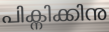
പിക്നിക്കിനു